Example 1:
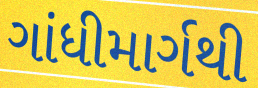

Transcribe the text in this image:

ગાંધીમાર્ગથી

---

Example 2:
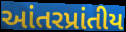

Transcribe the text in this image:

આંતરપ્રાંતીય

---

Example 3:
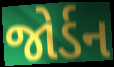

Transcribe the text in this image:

જોર્ડન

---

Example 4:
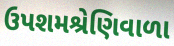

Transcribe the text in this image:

ઉપશમશ્રેણિવાળા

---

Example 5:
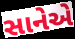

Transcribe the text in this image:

સાનેએ